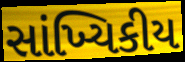
સાંખ્યિકીય